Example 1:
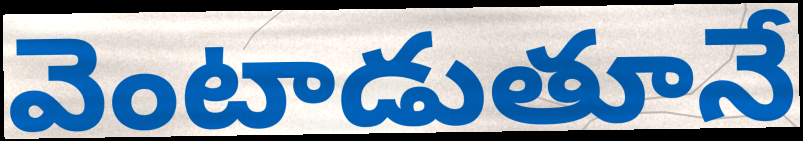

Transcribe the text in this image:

వెంటాడుతూనే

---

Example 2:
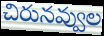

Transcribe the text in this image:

చిరునవ్వుల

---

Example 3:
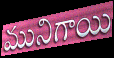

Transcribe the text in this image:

మునిగాయి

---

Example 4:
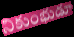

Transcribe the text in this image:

నికుంభుడూ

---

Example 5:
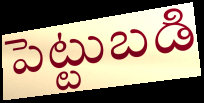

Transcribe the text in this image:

పెట్టుబడి